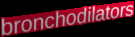
bronchodilators